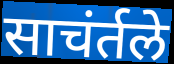
साचंर्तले